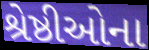
શ્રેષ્ઠીઓના